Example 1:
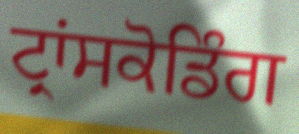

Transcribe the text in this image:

ਟ੍ਰਾਂਸਕੋਡਿੰਗ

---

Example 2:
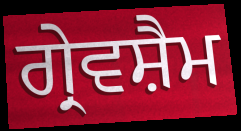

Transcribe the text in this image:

ਗ੍ਰੇਵਸ਼ੈਮ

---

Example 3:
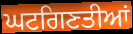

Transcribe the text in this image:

ਘਟਗਿਣਤੀਆਂ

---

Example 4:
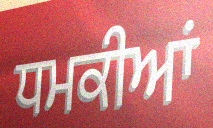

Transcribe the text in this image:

ਧਮਕੀਆਂ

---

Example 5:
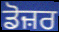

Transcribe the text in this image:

ਡੋਜ਼ਰ